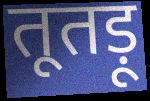
तूतड़ू